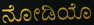
ನೋಡಿಯೊ